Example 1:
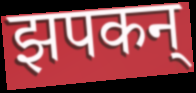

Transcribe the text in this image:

झपकन्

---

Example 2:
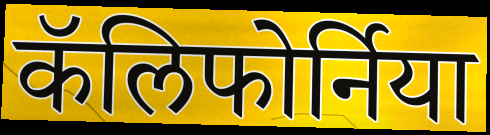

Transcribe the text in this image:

कॅलिफोर्निया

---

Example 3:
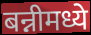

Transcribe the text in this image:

बन्नीमध्ये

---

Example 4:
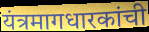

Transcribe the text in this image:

यंत्रमागधारकांची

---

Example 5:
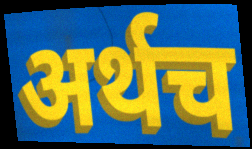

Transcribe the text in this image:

अर्थच